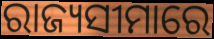
ରାଜ୍ୟସୀମାରେ